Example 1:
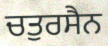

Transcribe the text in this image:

ਚਤੁਰਸੈਨ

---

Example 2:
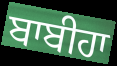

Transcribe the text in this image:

ਬਾਬੀਹਾ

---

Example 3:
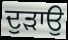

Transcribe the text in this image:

ਦੁੜਾਉ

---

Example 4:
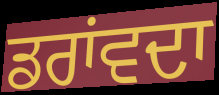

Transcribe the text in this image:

ਡਰਾਂਵਦਾ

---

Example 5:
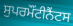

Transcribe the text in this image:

ਸੁਪਰਮੌਂਟੀਨੈਂਟਸ